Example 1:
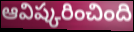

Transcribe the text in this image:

ఆవిష్కరించింది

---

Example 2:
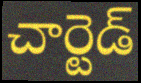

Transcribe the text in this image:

చార్టెడ్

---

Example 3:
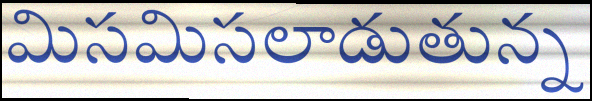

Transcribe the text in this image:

మిసమిసలాడుతున్న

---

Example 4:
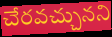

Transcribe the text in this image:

చేరవచ్చునని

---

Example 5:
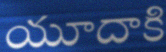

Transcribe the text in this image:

యూదాకి